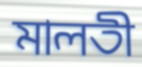
মালতী